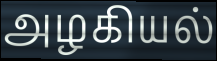
அழகியல்